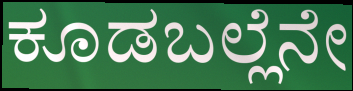
ಕೂಡಬಲ್ಲೆನೇ